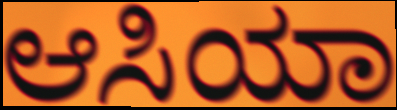
ಆಸಿಯಾ